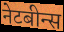
नेटबीन्स